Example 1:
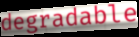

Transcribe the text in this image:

degradable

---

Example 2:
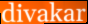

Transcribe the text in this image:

divakar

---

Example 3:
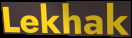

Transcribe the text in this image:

Lekhak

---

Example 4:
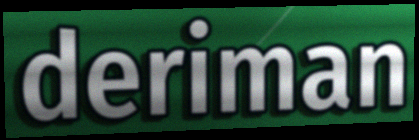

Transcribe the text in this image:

deriman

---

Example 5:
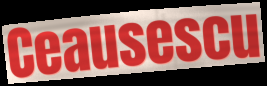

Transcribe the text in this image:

Ceausescu